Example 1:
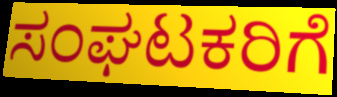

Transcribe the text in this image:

ಸಂಘಟಕರಿಗೆ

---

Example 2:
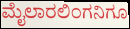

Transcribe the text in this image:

ಮೈಲಾರಲಿಂಗನಿಗೂ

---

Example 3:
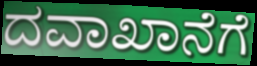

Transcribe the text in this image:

ದವಾಖಾನೆಗೆ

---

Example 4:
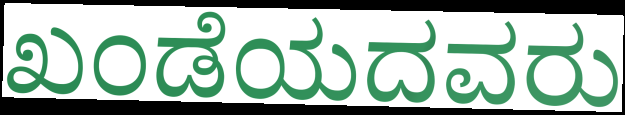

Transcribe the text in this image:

ಖಂಡೆಯದವರು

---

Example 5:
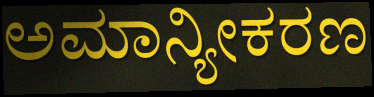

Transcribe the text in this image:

ಅಮಾನ್ಯೀಕರಣ